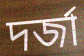
দৰ্জা